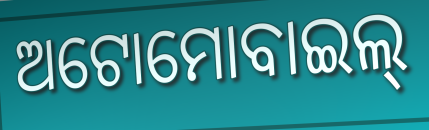
ଅଟୋମୋବାଇଲ୍